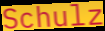
Schulz